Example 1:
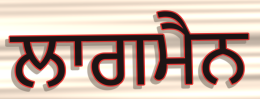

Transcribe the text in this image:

ਲਾਗਮੈਨ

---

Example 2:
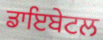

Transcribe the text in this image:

ਡਾਇਬੇਟਲ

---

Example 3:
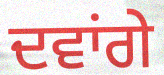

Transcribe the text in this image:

ਦਵਾਂਗੇ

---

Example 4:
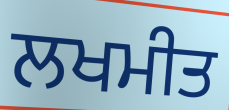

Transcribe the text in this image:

ਲਖਮੀਤ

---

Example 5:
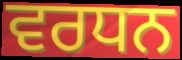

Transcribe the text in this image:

ਵਰਧਨ